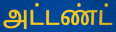
அட்டண்ட்